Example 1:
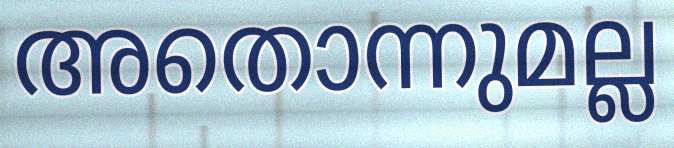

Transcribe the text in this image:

അതൊന്നുമല്ല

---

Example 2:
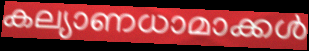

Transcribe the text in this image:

കല്യാണധാമാക്കൾ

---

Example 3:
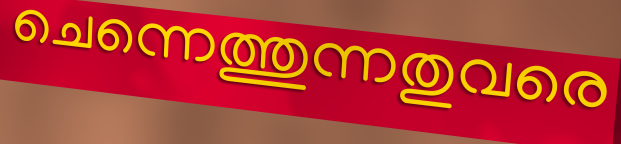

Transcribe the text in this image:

ചെന്നെത്തുന്നതുവരെ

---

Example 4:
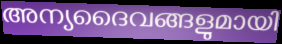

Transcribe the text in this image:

അന്യദൈവങ്ങളുമായി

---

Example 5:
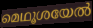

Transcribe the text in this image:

മെഥൂശയേൽ